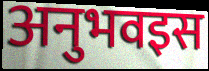
अनुभवइस